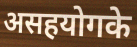
असहयोगके